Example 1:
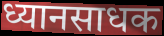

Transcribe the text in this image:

ध्यानसाधक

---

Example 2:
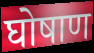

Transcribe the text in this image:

घोषाण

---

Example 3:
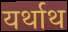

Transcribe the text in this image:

यर्थाथ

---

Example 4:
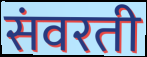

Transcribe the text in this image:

संवरती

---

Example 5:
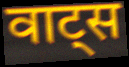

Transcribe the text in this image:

वाट्स